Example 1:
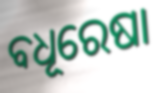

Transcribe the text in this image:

ବଧୂରେଷା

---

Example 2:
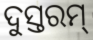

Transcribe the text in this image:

ଦୁସ୍ତରମ୍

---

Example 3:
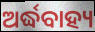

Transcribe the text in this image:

ଅର୍ଦ୍ଧବାହ୍ୟ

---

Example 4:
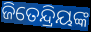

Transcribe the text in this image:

ଜିତେନ୍ଦ୍ରିୟଙ୍କ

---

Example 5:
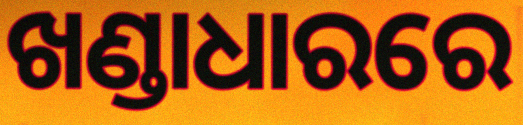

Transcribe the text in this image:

ଖଣ୍ଡାଧାରରେ